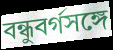
বন্ধুবর্গসঙ্গে